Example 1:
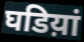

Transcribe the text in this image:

घडिय़ां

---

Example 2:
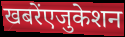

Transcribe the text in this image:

खबरेंएजुकेशन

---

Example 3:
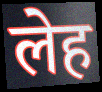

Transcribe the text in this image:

लेह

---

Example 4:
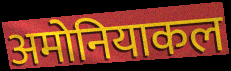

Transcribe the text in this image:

अमोनियाकल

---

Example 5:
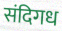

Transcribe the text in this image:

संदिगध